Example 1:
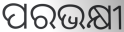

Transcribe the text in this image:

ପରଭକ୍ଷୀ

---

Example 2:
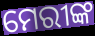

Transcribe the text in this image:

ମେରୀଙ୍କ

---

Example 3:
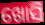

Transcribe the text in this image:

ଖୋସି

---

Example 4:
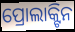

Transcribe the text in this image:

ପ୍ରୋଲାକ୍ଟିନ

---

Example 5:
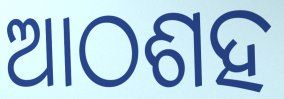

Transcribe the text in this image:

ଆଠଶହ